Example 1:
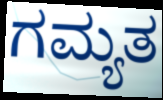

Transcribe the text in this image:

ಗಮ್ಯತ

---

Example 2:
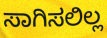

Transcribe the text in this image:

ಸಾಗಿಸಲಿಲ್ಲ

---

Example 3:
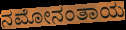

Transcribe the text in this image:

ನಮೋನಂತಾಯ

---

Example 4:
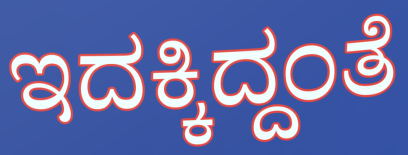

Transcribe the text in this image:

ಇದಕ್ಕಿದ್ದಂತೆ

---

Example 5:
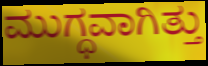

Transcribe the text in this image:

ಮುಗ್ಧವಾಗಿತ್ತು